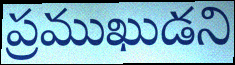
ప్రముఖుడని